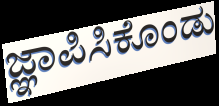
ಜ್ಞಾಪಿಸಿಕೊಂಡು